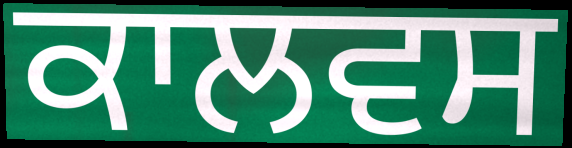
ਕਾਲਵਸ